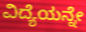
ವಿದ್ಯೆಯನ್ನೇ